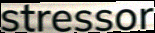
stressor